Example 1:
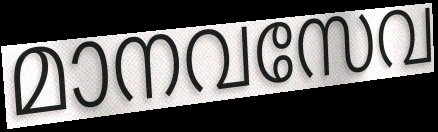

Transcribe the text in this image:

മാനവസേവ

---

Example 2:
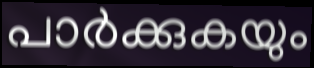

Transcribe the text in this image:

പാർക്കുകയും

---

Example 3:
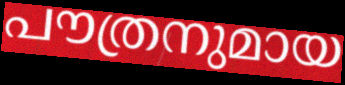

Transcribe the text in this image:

പൗത്രനുമായ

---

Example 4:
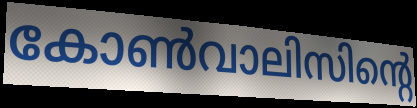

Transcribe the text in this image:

കോൺവാലിസിന്റെ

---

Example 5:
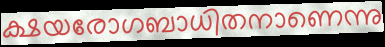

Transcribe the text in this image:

ക്ഷയരോഗബാധിതനാണെന്നു